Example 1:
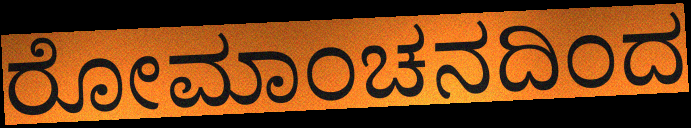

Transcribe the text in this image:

ರೋಮಾಂಚನದಿಂದ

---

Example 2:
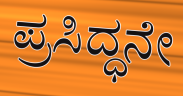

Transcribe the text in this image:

ಪ್ರಸಿದ್ಧನೇ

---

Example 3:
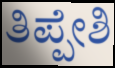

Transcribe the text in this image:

ತಿಪ್ಪೇಶಿ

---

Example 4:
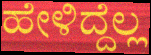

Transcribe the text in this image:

ಹೇಳಿದ್ದೆಲ್ಲ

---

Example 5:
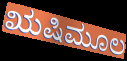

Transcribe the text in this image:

ಋಷಿಮೂಲ